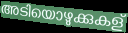
അടിയൊഴുക്കുകള്